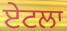
ਏਟਲਾ